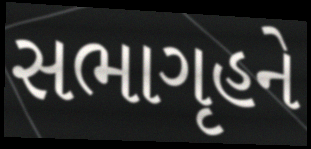
સભાગૃહને